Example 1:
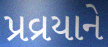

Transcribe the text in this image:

પ્રવ્રયાને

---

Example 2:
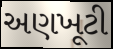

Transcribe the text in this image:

અણખૂટી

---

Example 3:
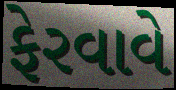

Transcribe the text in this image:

ફેરવાવે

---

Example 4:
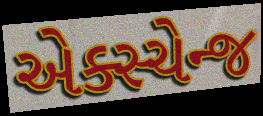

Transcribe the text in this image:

એક્સ્ચેન્જ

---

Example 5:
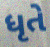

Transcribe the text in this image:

ધૃતે